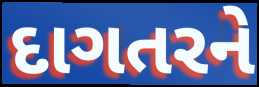
દાગતરને